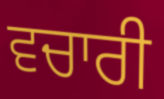
ਵਚਾਰੀ